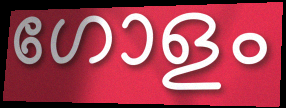
ഗോളം